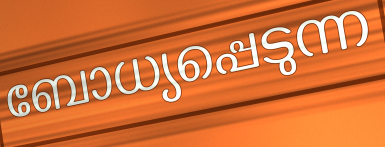
ബോധ്യപ്പെടുന്ന